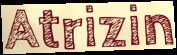
Atrizin